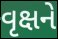
વૃક્ષને